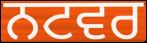
ਨਟਵਰ